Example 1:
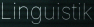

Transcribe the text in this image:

Linguistik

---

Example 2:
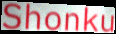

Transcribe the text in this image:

Shonku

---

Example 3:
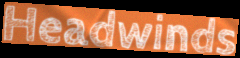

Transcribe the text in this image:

Headwinds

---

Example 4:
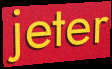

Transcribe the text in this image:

jeter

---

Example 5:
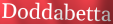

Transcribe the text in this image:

Doddabetta